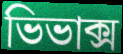
ভিভাক্স